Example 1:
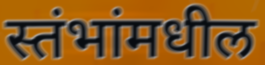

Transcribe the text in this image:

स्तंभांमधील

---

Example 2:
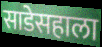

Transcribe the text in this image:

साडेसहाला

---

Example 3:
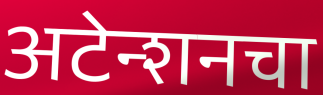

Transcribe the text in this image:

अटेन्शनचा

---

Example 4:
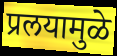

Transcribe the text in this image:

प्रलयामुळे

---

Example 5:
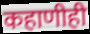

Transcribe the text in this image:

कहाणीही